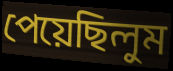
পেয়েছিলুম